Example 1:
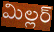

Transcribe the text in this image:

మిల్లర్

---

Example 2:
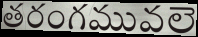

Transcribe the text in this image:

తరంగమువలె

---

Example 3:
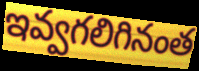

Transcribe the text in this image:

ఇవ్వగలిగినంత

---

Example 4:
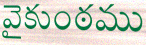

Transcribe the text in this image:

వైకుంఠము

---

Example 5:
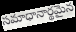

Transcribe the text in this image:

సమాధానార్థమైన